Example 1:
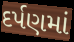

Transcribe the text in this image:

દર્પણમાં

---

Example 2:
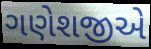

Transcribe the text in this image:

ગણેશજીએ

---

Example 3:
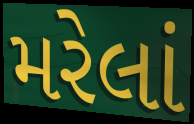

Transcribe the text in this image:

મરેલાં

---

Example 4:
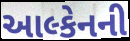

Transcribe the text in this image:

આલ્કેનની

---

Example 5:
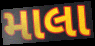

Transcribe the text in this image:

માલા